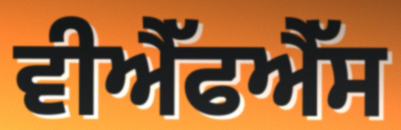
ਵੀਐੱਫਐੱਸ